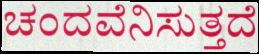
ಚಂದವೆನಿಸುತ್ತದೆ